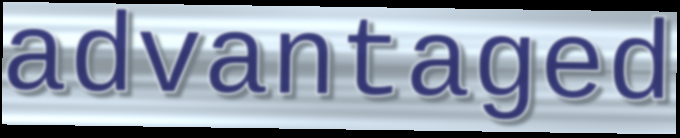
advantaged